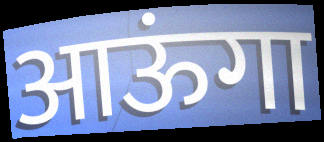
आऊंगा